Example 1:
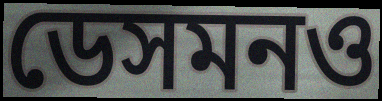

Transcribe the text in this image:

ডেসমনও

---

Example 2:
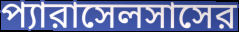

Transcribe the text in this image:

প্যারাসেলসাসের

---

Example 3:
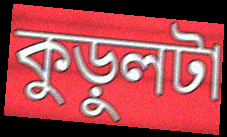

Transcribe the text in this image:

কুড়ুলটা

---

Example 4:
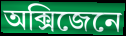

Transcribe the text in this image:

অক্সিজেনে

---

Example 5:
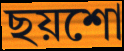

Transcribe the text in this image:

ছয়শো